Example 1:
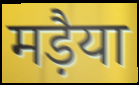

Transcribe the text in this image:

मड़ैया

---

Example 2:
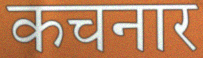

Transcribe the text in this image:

कचनार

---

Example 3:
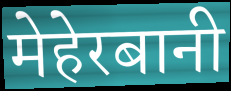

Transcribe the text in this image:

मेहेरबानी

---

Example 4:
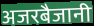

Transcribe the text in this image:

अजरबैजानी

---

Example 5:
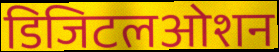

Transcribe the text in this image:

डिजिटलओशन